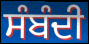
ਸੰਬੰਦੀ